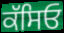
ਕੱਸਿਓ